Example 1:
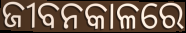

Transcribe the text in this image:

ଜୀବନକାଳରେ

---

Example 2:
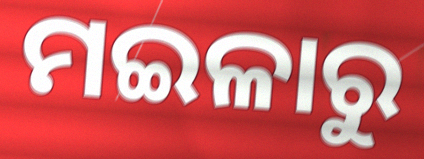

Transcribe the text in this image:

ମଇଳାରୁ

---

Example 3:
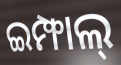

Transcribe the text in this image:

ଇମ୍ଫାଲ୍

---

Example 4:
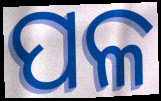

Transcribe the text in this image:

ପଳ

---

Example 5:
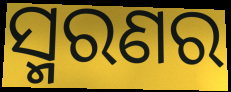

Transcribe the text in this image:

ସ୍ମରଣର